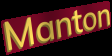
Manton